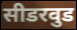
सीडरवुड